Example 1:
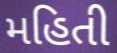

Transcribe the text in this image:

મહિતી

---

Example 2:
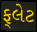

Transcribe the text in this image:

ફ્‌લેટ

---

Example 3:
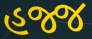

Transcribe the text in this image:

હજ્જ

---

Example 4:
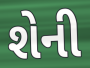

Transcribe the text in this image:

શેની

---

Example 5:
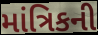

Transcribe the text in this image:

માંત્રિકની